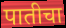
पातीचा